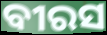
ବୀରସ